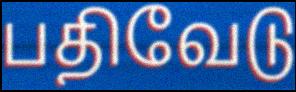
பதிவேடு